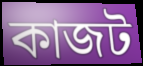
কাজট